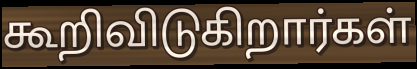
கூறிவிடுகிறார்கள்